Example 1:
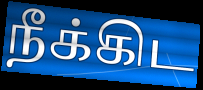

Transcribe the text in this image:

நீக்கிட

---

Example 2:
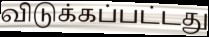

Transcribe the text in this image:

விடுக்கப்பட்டது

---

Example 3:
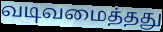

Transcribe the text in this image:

வடிவமைத்தது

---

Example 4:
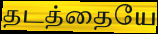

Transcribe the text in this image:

தடத்தையே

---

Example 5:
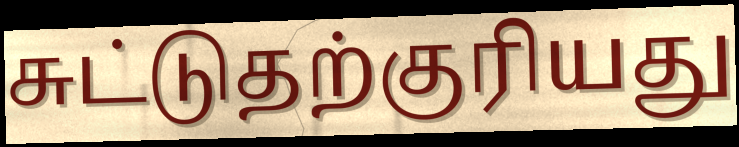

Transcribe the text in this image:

சுட்டுதற்குரியது